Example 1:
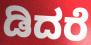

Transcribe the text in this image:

ಡಿದರೆ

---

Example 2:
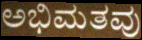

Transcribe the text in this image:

ಅಭಿಮತವು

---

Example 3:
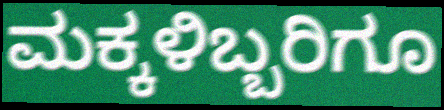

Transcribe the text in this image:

ಮಕ್ಕಳಿಬ್ಬರಿಗೂ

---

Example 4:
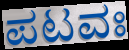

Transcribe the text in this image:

ಪಟವಃ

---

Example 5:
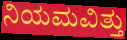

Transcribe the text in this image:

ನಿಯಮವಿತ್ತು